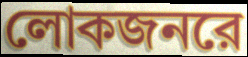
লোকজনরে